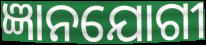
ଜ୍ଞାନଯୋଗୀ